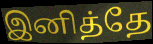
இனித்தே